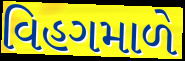
વિહગમાળે